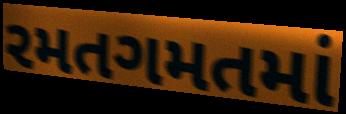
રમતગમતમાં